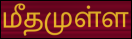
மீதமுள்ள